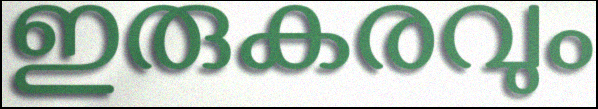
ഇരുകരവും